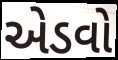
એડવો